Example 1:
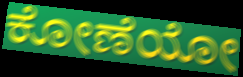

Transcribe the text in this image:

ಕೋಣೆಯೋ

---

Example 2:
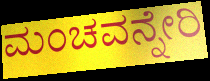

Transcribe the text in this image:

ಮಂಚವನ್ನೇರಿ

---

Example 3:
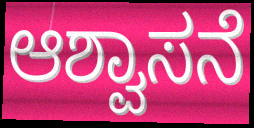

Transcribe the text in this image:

ಆಶ್ವಾಸನೆ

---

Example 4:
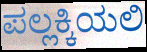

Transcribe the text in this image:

ಪಲ್ಲಕ್ಕಿಯಲಿ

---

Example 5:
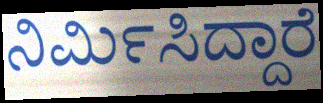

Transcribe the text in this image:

ನಿರ್ಮಿಸಿದ್ದಾರೆ